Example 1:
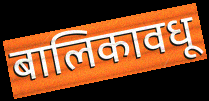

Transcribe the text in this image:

बालिकावधू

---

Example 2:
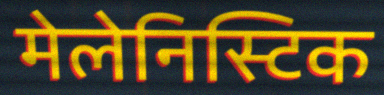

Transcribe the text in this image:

मेलेनिस्टिक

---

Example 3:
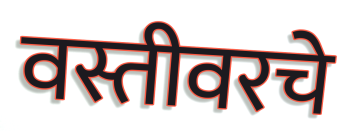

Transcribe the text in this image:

वस्तीवरचे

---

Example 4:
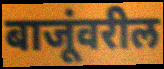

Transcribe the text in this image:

बाजूंवरील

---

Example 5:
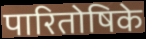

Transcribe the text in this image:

पारितोषिके